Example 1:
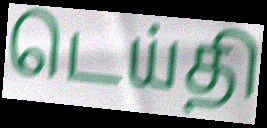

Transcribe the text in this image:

டெய்தி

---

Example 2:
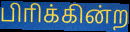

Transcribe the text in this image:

பிரிக்கின்ற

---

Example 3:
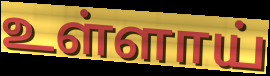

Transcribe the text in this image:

உள்ளாய்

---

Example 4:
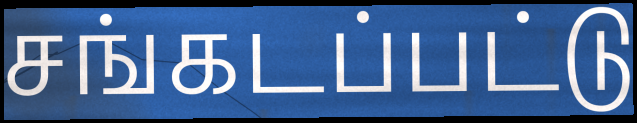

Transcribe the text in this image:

சங்கடப்பட்டு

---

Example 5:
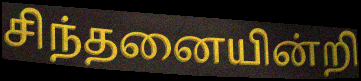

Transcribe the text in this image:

சிந்தனையின்றி